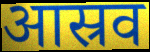
आस्रव